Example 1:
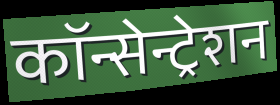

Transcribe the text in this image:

कॉन्सेन्ट्रेशन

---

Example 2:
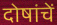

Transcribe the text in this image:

दोषांचें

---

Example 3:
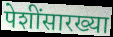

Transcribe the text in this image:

पेशींसारख्या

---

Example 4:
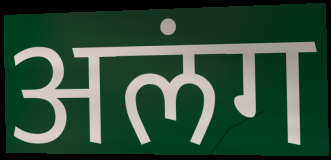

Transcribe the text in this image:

अलंग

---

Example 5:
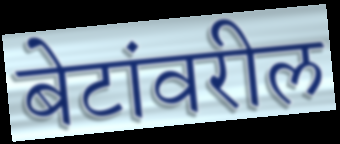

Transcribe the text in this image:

बेटांवरील